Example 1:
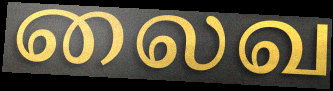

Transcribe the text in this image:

லைவ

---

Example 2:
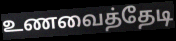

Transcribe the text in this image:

உணவைத்தேடி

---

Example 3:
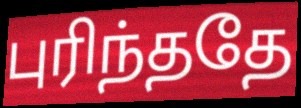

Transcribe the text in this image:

புரிந்ததே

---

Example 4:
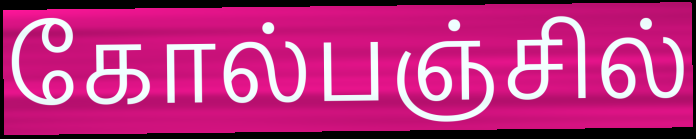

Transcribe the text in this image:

கோல்பஞ்சில்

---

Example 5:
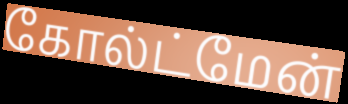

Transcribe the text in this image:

கோல்ட்மேன்